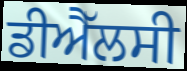
ਡੀਐੱਲਸੀ